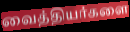
வைத்தியர்களை